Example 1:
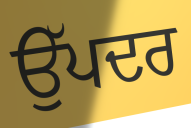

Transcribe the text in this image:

ਉੱਪਦਰ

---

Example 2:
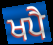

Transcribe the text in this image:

ਖਪੈ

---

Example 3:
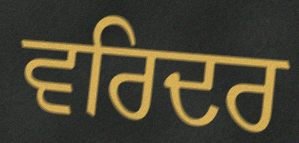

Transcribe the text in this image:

ਵਰਿਦਰ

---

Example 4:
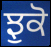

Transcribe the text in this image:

ਝੁਕੋ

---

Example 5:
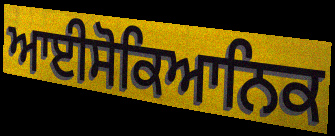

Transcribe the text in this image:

ਆਈਸੋਕਿਆਨਿਕ